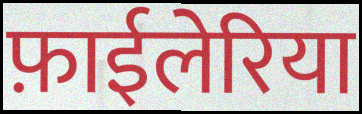
फ़ाईलेरिया